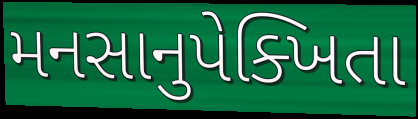
મનસાનુપેક્ખિતા